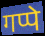
गप्पे